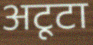
अटूटा